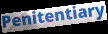
Penitentiary